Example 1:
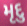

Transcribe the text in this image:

મૃદુ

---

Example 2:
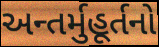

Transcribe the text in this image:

અન્તર્મુહૂર્તનો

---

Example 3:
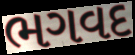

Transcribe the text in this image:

ભગવદ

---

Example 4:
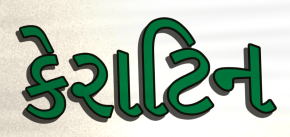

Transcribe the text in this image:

કેરાટિન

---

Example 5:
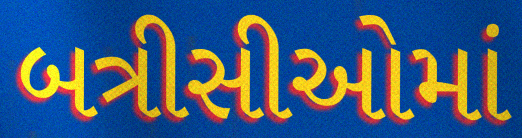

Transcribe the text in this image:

બત્રીસીઓમાં